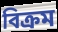
বিক্ৰম